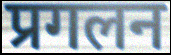
प्रगलन